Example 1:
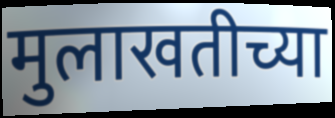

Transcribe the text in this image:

मुलाखतीच्या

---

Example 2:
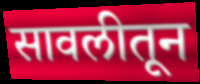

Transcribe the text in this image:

सावलीतून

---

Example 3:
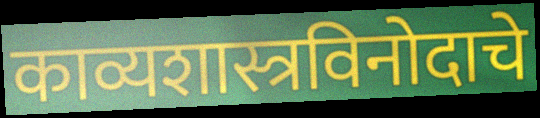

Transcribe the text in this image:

काव्यशास्त्रविनोदाचे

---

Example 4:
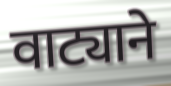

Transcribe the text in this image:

वाट्याने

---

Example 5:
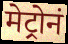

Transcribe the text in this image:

मेट्रोनं